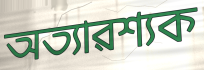
অত্যাৱশ্যক